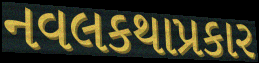
નવલકથાપ્રકાર